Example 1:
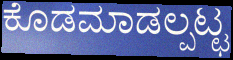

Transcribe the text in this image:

ಕೊಡಮಾಡಲ್ಪಟ್ಟ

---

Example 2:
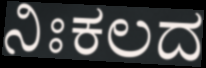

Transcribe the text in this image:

ನಿಃಕಲದ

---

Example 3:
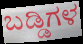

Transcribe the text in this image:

ಬಡ್ಡಿಗಳ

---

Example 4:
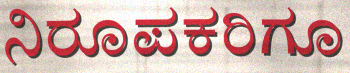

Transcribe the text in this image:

ನಿರೂಪಕರಿಗೂ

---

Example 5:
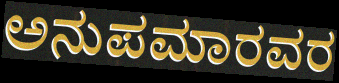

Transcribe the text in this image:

ಅನುಪಮಾರವರ